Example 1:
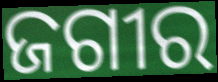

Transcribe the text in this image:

ଜଗୀର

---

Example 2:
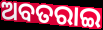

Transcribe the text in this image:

ଅବତରାଇ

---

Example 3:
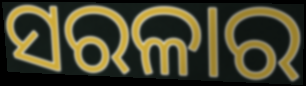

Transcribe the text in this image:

ସରଳାର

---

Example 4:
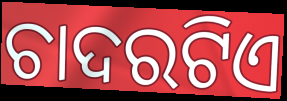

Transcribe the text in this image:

ଚାଦରଟିଏ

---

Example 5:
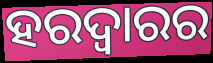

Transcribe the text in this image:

ହରଦ୍ୱାରର